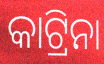
କାଟ୍ରିନା